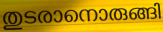
തുടരാനൊരുങ്ങി